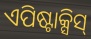
ଏପିଷ୍ଟାକ୍ସିସ୍